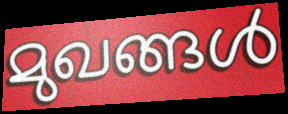
മുഖങ്ങൾ